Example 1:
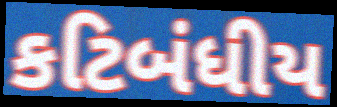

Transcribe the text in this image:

કટિબંધીય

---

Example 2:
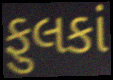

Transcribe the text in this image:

ફુલકાં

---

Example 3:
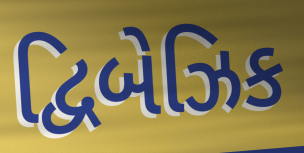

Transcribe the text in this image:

દ્વિબેઝિક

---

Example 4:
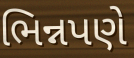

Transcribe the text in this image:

ભિન્નપણે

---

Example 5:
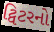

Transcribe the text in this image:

ટ્વિટરનો